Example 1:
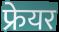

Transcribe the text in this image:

फ्रेयर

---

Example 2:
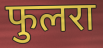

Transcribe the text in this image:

फुलरा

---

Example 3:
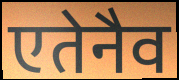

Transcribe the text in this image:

एतेनैव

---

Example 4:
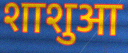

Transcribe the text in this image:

शाशुआ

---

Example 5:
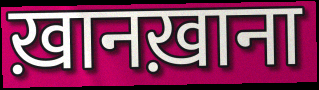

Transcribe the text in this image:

ख़ानख़ाना